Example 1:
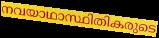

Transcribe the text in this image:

നവയാഥാസ്ഥിതികരുടെ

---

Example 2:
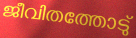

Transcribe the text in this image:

ജീവിതത്തോടു്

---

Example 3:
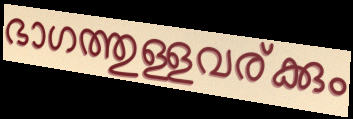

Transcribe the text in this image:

ഭാഗത്തുള്ളവര്ക്കും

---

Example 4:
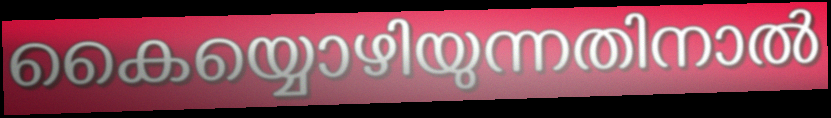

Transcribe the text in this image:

കൈയ്യൊഴിയുന്നതിനാൽ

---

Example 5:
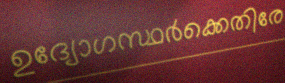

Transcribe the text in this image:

ഉദ്യോഗസ്ഥർക്കെതിരേ